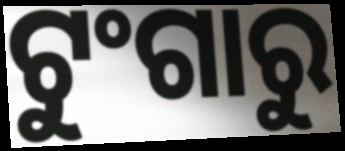
ଟୁଂଗାରୁ